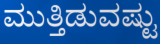
ಮುತ್ತಿಡುವಷ್ಟು